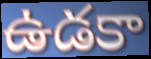
ఉడకా